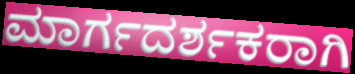
ಮಾರ್ಗದರ್ಶಕರಾಗಿ